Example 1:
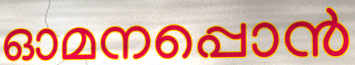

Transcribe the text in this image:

ഓമനപ്പൊൻ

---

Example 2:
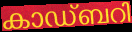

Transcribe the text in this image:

കാഡ്ബറി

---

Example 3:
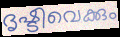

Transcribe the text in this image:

ദൃഷ്ടിവെക്കും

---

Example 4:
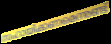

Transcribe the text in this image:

സഹായിക്കണമെന്നുണ്ട്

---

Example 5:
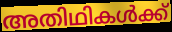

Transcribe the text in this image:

അതിഥികൾക്ക്